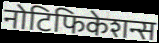
नोटिफिकेशन्स